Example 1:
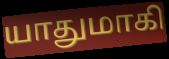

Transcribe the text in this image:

யாதுமாகி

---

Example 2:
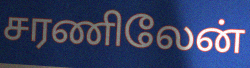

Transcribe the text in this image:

சரணிலேன்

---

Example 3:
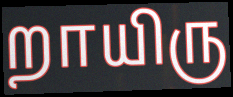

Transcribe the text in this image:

றாயிரு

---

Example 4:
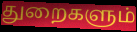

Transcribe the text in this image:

துறைகளும்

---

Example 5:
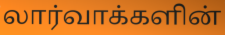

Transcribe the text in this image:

லார்வாக்களின்